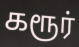
கரூர்